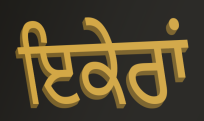
ਇਕੇਰਾਂ